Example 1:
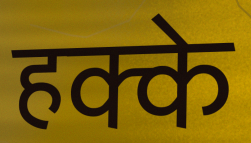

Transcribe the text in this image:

हक्के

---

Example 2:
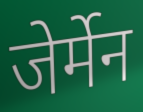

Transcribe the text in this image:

जेर्मेन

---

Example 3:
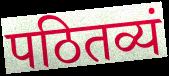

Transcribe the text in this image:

पठितव्यं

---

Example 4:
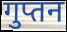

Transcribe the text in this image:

गुप्तन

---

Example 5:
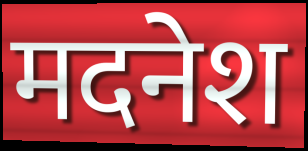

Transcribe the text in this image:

मदनेश